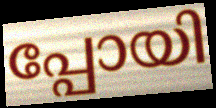
പ്പോയി